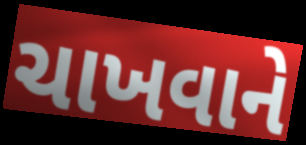
ચાખવાને